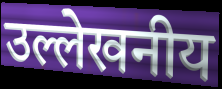
उल्लेखनीय